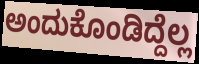
ಅಂದುಕೊಂಡಿದ್ದೆಲ್ಲ